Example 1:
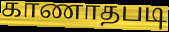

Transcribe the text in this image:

காணாதபடி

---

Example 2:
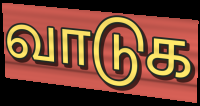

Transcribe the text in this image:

வாடுக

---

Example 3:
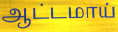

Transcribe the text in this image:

ஆட்டமாய்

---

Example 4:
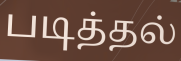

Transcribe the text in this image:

படித்தல்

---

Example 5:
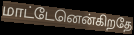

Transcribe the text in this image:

மாட்டேனென்கிறதே